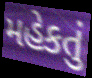
મહેકતું